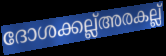
ദോശക്കല്ല്അരകല്ല്